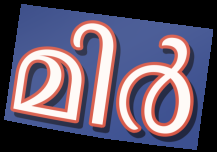
മിർ